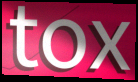
tox